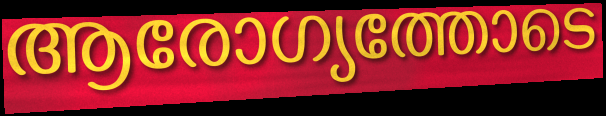
ആരോഗ്യത്തോടെ